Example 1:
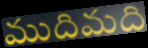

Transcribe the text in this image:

ముదిమది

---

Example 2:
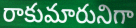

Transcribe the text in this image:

రాకుమారునిగా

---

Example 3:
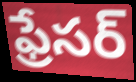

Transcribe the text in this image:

ఫ్రేసర్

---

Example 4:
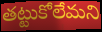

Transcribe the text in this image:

తట్టుకోలేమని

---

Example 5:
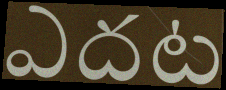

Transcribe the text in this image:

ఎదట